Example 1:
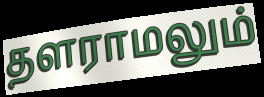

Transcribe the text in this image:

தளராமலும்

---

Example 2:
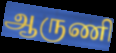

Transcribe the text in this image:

ஆருணி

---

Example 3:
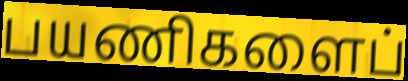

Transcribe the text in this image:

பயணிகளைப்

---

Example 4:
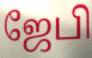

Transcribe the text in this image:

ஜேபி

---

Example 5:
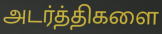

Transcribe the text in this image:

அடர்த்திகளை